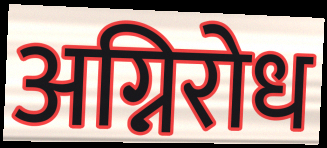
अग्निरोध